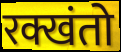
रक्खंतो